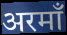
अरमाँ